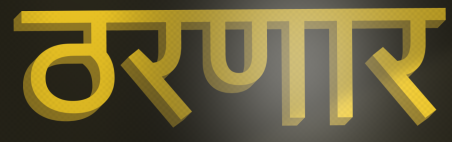
ठरणार